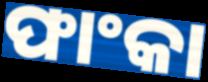
ଫାଂକା